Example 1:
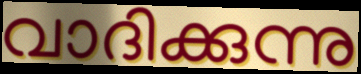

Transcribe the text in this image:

വാദിക്കുന്നു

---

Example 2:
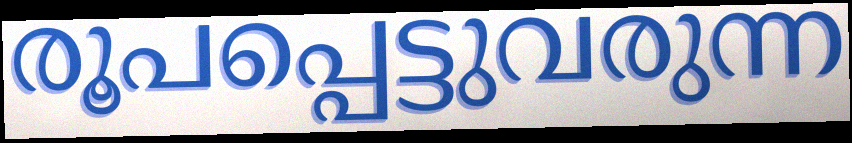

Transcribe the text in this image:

രൂപപ്പെട്ടുവരുന്ന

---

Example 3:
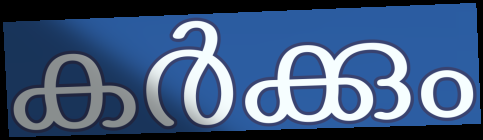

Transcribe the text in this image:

കർക്കും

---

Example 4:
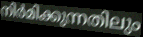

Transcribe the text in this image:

നിർമിക്കുന്നതിലും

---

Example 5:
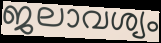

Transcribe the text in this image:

ജലാവശ്യം